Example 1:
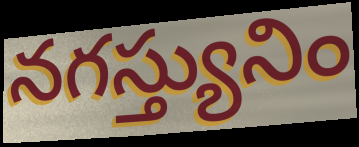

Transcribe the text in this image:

నగస్త్యునిం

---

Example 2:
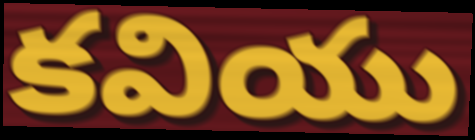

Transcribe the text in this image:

కవియు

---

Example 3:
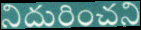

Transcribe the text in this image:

నిదురించని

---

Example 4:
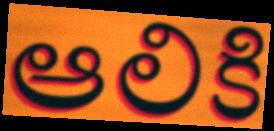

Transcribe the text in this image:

ఆలికి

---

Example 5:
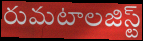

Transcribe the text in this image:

రుమటాలజిస్ట్